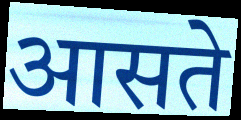
आसते